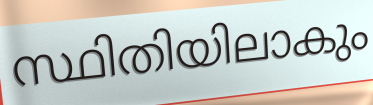
സ്ഥിതിയിലാകും